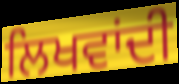
ਲਿਖਵਾਂਦੀ